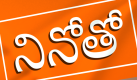
నినోతో